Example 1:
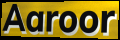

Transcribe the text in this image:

Aaroor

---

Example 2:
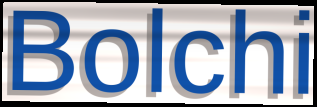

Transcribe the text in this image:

Bolchi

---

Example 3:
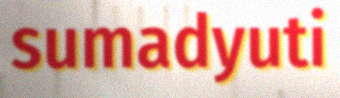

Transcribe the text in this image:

sumadyuti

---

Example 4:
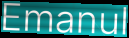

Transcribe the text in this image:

Emanul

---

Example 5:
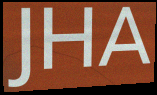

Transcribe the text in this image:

JHA